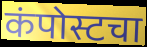
कंपोस्टचा